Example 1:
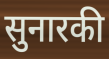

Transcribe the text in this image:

सुनारकी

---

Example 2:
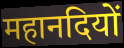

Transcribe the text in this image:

महानदियों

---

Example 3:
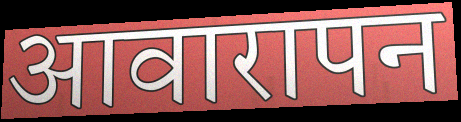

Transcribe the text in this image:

आवारापन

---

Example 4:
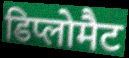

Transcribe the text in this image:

डिप्लोमैट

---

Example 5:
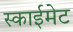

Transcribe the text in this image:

स्काईमेट